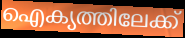
ഐക്യത്തിലേക്ക്